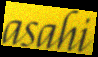
asahi